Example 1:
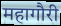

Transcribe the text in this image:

महागौरी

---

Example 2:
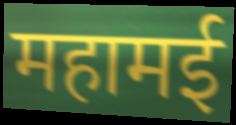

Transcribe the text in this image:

महामई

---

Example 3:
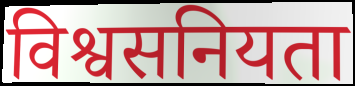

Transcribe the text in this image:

विश्वसनियता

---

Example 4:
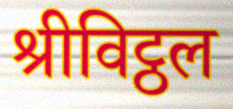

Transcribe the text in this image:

श्रीविट्ठल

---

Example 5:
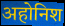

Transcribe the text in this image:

अहोनिश